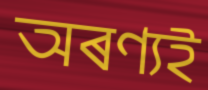
অৰণ্যই